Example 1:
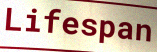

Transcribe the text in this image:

Lifespan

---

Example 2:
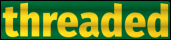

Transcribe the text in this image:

threaded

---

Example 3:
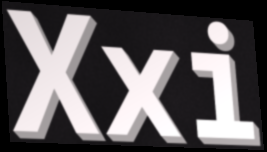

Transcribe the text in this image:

Xxi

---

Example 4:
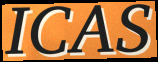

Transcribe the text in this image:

ICAS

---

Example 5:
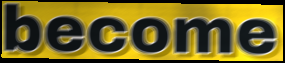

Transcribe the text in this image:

become